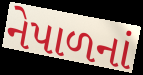
નેપાળનાં